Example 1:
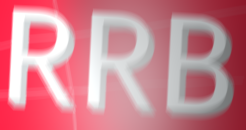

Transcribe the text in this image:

RRB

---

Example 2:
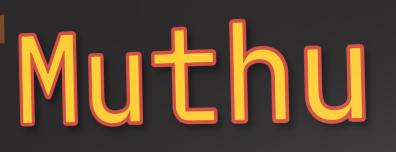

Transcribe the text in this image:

Muthu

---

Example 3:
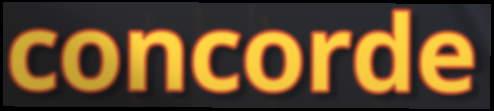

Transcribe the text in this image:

concorde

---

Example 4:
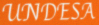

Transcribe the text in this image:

UNDESA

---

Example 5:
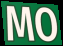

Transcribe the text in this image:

MO